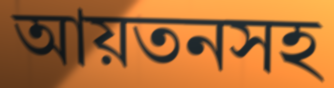
আয়তনসহ